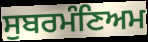
ਸੁਬਰਮੰਣਿਅਮ